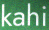
kahi